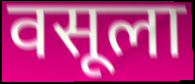
वसूला